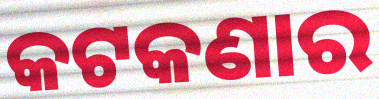
କଟକଣାର